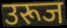
उरूज